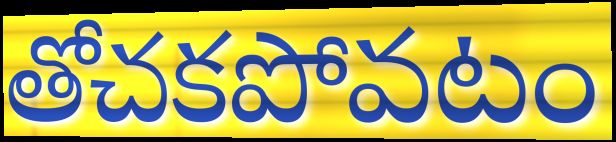
తోచకపోవటం